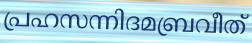
പ്രഹസന്നിദമബ്രവീത്